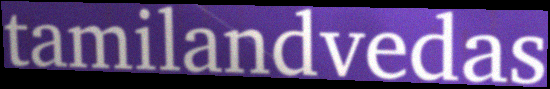
tamilandvedas